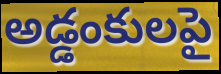
అడ్డంకులపై